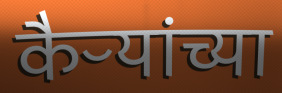
कैऱ्यांच्या